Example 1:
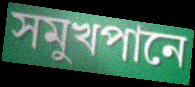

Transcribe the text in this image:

সমুখপানে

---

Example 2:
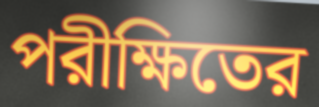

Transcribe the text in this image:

পরীক্ষিতের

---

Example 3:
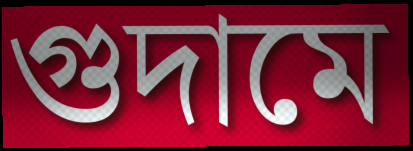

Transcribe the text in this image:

গুদামে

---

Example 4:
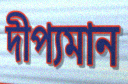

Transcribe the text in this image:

দীপ্যমান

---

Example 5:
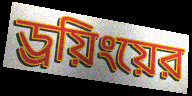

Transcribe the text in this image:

ড্রয়িংয়ের